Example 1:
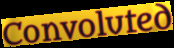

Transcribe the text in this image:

Convoluted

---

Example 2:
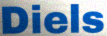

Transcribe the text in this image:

Diels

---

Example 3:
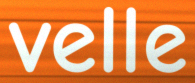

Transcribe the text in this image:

velle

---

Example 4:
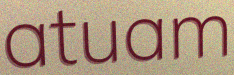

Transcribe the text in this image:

atuam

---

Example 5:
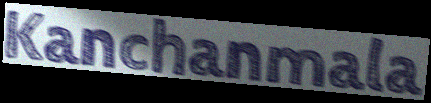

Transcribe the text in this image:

Kanchanmala